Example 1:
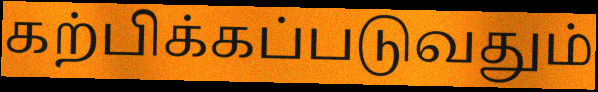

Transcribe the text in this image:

கற்பிக்கப்படுவதும்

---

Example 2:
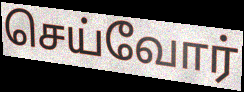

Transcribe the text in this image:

செய்வோர்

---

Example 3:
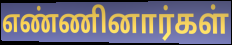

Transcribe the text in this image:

எண்ணினார்கள்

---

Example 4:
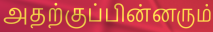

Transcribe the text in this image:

அதற்குப்பின்னரும்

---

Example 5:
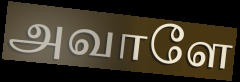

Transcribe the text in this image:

அவாளே